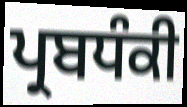
ਪ੍ਰਬਧੰਕੀ